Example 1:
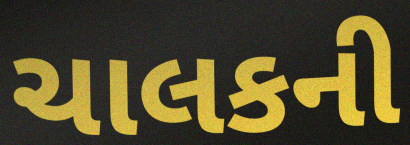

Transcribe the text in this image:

ચાલકની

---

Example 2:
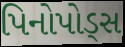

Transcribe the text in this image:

પિનોપોડ્સ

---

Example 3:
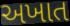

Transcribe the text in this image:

અખાત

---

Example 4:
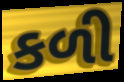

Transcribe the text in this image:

કળી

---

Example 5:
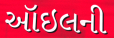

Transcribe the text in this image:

ઑઇલની